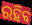
ରହିବ